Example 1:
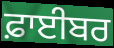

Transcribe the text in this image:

ਫ਼ਾਈਬਰ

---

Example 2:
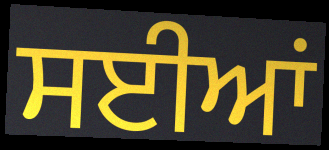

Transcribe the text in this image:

ਸਈਆਂ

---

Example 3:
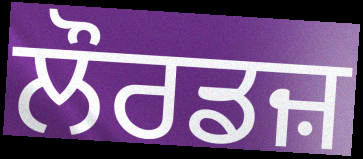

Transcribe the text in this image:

ਲੌਰਡਜ਼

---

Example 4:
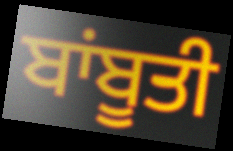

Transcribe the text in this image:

ਬਾਂਬੂਤੀ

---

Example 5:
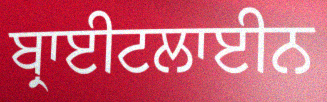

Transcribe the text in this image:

ਬ੍ਰਾਈਟਲਾਈਨ